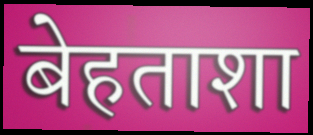
बेहताशा